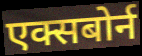
एक्सबोर्न